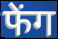
फेंग